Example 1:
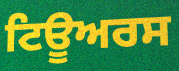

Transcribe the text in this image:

ਟਿਊਅਰਸ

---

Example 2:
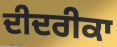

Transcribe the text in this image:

ਦੀਦਰੀਕਾ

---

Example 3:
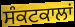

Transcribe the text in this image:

ਸੰਕਟਕਾਲਾਂ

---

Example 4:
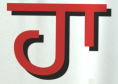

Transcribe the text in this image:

ਹਾ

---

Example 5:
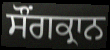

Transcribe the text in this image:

ਸੌਂਗਕ੍ਰਾਨ